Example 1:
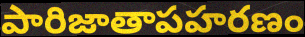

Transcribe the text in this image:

పారిజాతాపహరణం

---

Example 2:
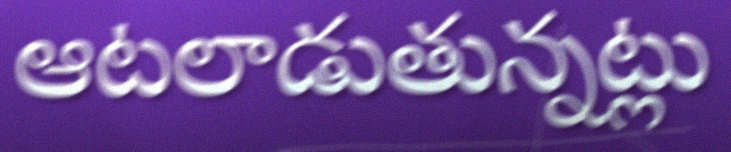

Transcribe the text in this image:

ఆటలాడుతున్నట్లు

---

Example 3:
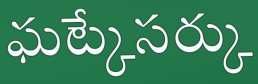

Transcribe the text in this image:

ఘట్కేసర్కు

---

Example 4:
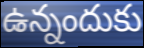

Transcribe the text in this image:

ఉన్నందుకు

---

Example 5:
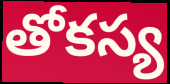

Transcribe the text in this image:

తోకస్య